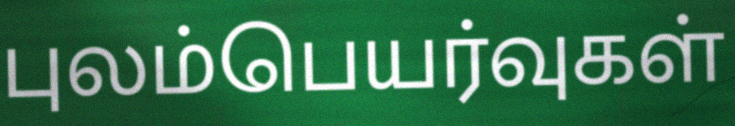
புலம்பெயர்வுகள்